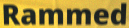
Rammed